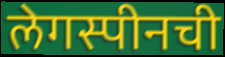
लेगस्पीनची